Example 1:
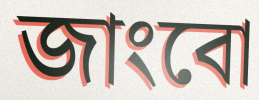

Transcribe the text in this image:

জাংবো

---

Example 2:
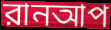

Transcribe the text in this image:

রানআপ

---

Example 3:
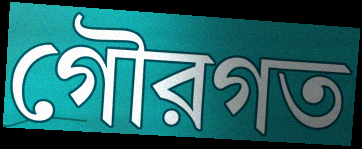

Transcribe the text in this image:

গৌরগত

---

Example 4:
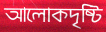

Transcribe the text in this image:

আলোকদৃষ্টি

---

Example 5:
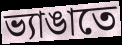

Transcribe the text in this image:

ভ্যাঙাতে